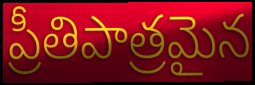
ప్రీతిపాత్రమైన